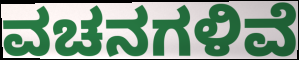
ವಚನಗಳಿವೆ